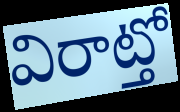
విరాట్తో